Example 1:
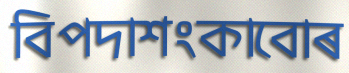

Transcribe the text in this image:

বিপদাশংকাবোৰ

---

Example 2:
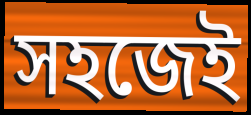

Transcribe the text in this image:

সহজেই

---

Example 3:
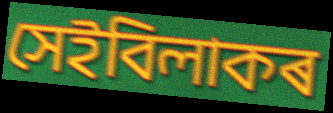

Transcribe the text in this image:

সেইবিলাকৰ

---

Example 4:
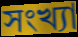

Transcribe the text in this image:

সংখ্যা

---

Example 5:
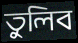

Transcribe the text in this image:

তুলিব